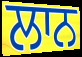
ਲਾਨ